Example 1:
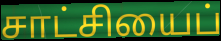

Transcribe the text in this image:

சாட்சியைப்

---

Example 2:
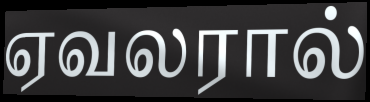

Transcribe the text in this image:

ஏவலரால்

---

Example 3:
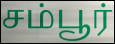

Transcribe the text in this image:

சம்பூர்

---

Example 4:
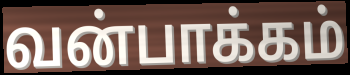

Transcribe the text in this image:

வன்பாக்கம்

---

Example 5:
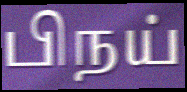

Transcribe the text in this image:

பிநய்